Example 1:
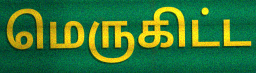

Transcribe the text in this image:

மெருகிட்ட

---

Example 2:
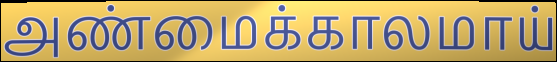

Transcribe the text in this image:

அண்மைக்காலமாய்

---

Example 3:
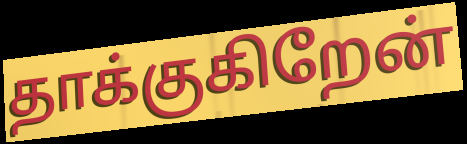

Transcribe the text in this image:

தாக்குகிறேன்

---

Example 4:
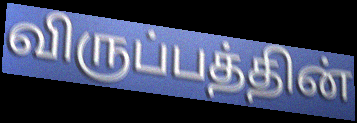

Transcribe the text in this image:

விருப்பத்தின்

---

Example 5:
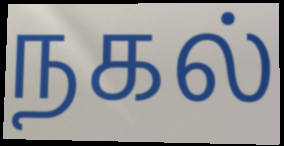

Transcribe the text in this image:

நகல்